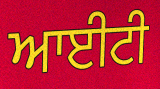
ਆਈਟੀ